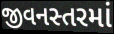
જીવનસ્તરમાં